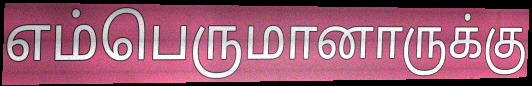
எம்பெருமானாருக்கு